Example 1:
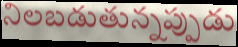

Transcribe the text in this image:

నిలబడుతున్నప్పుడు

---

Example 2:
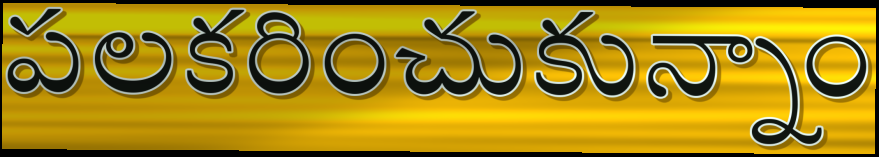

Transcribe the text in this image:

పలకరించుకున్నాం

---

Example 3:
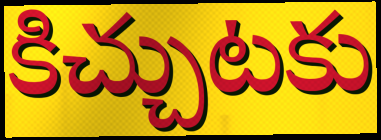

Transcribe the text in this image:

కిచ్చుటకు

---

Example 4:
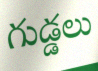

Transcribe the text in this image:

గుడ్డలు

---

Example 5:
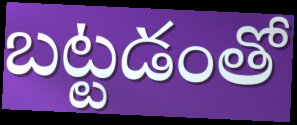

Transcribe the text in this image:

బట్టడంతో